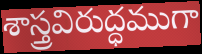
శాస్త్రవిరుద్ధముగా